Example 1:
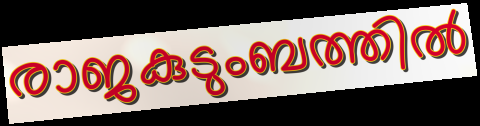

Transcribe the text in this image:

രാജകുടുംബത്തിൽ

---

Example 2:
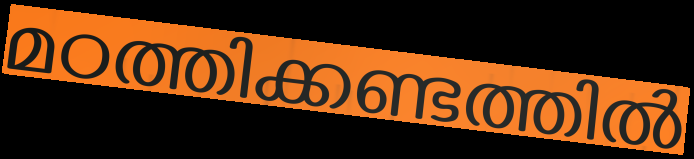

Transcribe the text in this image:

മഠത്തിക്കണ്ടത്തിൽ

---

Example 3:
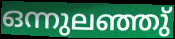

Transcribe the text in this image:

ഒന്നുലഞ്ഞു്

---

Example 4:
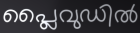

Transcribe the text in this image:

പ്ലൈവുഡിൽ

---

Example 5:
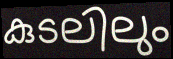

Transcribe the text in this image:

കുടലിലും